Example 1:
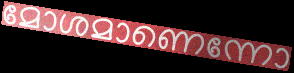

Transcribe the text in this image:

മോശമാണെന്നോ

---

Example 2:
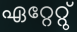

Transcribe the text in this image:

ഏറ്റേറ്റു്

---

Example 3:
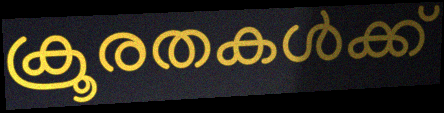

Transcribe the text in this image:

ക്രൂരതകൾക്ക്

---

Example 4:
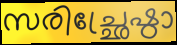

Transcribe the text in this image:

സരിച്ഛ്രേഷ്ഠാ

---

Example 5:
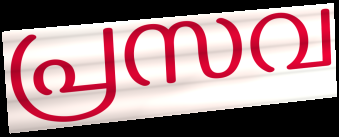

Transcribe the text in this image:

പ്രസവ